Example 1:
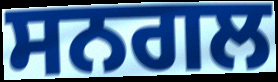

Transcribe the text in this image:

ਸਨਗਲ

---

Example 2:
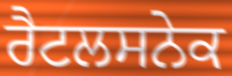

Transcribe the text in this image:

ਰੈਟਲਸਨੇਕ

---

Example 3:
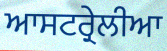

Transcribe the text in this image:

ਆਸਟਰ੍ਰੇਲੀਆ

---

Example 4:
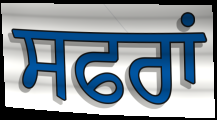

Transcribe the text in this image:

ਸਫਰਾਂ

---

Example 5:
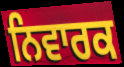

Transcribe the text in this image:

ਨਿਵਾਰਕ